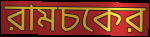
রামচকের